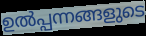
ഉൽപ്പന്നങ്ങളുടെ